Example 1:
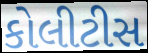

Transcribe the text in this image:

કોલીટીસ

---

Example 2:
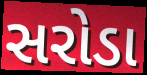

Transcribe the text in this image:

સરોડા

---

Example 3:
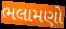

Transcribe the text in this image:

ભલામણો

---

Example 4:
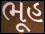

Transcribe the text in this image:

ભૂહ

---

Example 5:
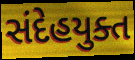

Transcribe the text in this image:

સંદેહયુક્ત